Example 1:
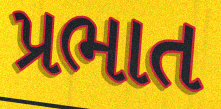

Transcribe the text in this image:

પ્રભાત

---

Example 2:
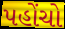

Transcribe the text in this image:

પહોંચો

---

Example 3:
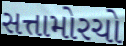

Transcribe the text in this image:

સત્તામોરચો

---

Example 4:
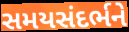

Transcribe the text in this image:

સમયસંદર્ભને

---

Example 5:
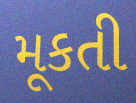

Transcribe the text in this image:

મૂકતી